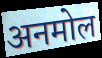
अनमोल